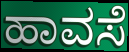
ಹಾವಸೆ